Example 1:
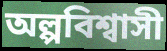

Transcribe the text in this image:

অল্পবিশ্বাসী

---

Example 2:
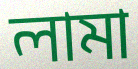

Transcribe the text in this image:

লামা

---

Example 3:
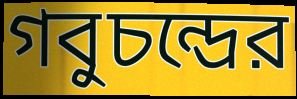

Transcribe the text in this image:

গবুচন্দ্রের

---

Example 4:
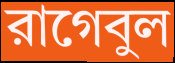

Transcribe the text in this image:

রাগেবুল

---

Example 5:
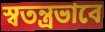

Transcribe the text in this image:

স্বতন্ত্রভাবে